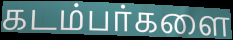
கடம்பர்களை